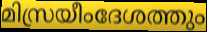
മിസ്രയീംദേശത്തും